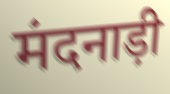
मंदनाड़ी